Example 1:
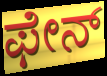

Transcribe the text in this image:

ಫೇನ್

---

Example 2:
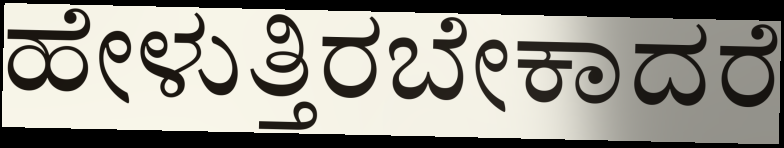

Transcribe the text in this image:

ಹೇಳುತ್ತಿರಬೇಕಾದರೆ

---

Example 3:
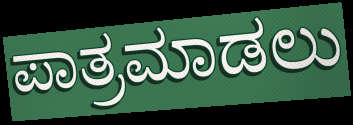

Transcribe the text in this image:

ಪಾತ್ರಮಾಡಲು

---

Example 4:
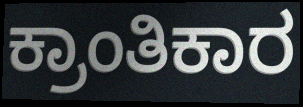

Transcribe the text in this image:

ಕ್ರಾಂತಿಕಾರ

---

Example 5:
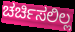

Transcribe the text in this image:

ಚರ್ಚಿಸಲಿಲ್ಲ